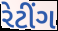
રેટીંગ